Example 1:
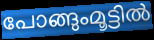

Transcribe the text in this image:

പോങ്ങുംമൂട്ടിൽ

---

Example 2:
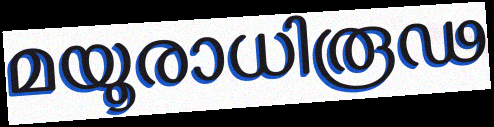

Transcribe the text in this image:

മയൂരാധിരൂഢ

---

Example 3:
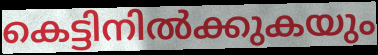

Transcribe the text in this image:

കെട്ടിനിൽക്കുകയും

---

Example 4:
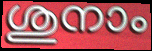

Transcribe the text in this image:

ശുനാം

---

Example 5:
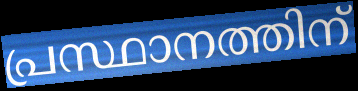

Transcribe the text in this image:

പ്രസ്ഥാനത്തിന്